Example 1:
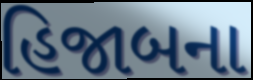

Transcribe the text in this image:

હિજાબના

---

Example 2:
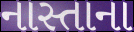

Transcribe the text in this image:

નાસ્તાના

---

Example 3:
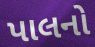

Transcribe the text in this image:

પાલનો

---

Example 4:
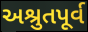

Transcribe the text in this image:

અશ્રુતપૂર્વ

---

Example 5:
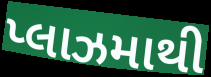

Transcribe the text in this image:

પ્લાઝમાથી